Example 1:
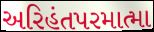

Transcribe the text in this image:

અરિહંતપરમાત્મા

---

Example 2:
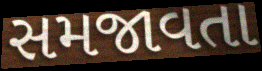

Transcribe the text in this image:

સમજાવતા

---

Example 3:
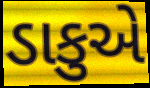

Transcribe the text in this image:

ડાકુએ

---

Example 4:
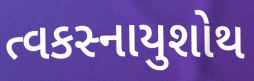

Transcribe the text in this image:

ત્વકસ્નાયુશોથ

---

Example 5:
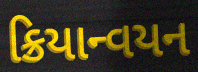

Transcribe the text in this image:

ક્રિયાન્વયન